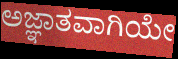
ಅಜ್ಞಾತವಾಗಿಯೇ